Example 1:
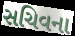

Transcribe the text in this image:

સચિવના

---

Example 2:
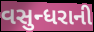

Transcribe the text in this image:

વસુન્ધરાની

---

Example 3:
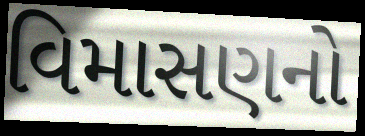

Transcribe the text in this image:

વિમાસણનો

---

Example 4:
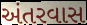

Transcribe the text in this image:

અંતરવાસ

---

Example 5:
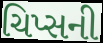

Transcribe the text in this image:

ચિપ્સની